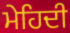
ਮੇਹਿਦੀ